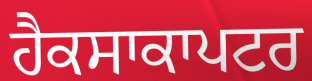
ਹੈਕਸਾਕਾਪਟਰ